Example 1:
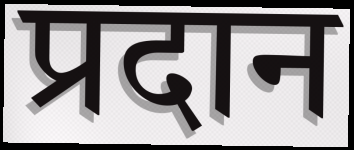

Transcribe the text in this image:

प्रदान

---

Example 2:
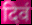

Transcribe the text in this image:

दिवं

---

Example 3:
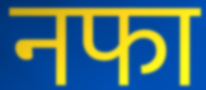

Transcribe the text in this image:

नफा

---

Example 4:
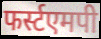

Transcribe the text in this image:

फर्स्टएमपी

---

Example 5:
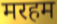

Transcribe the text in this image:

मरहम